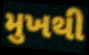
મુખથી